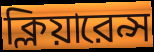
ক্লিয়ারেন্স